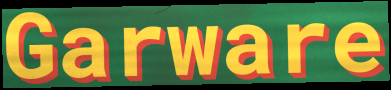
Garware